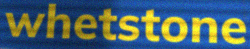
whetstone